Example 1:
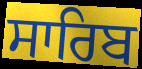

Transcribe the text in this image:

ਸਾਰਿਬ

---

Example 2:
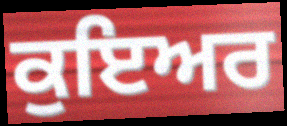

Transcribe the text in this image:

ਕੁਇਅਰ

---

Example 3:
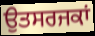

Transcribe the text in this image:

ਉਤਸਰਜਕਾਂ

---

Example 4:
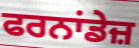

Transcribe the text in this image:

ਫਰਨਾਂਡੇਜ਼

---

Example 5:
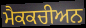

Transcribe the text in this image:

ਮੈਕਕਚੀਅਨ